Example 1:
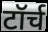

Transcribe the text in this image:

टॉर्च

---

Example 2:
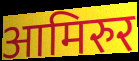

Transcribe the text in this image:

आमिरुर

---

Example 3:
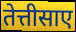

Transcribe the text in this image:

तेत्तीसाए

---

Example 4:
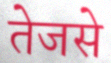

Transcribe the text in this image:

तेजसे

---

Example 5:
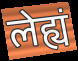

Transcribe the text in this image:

लेह्यं